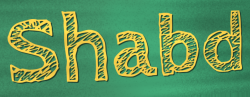
Shabd